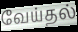
வேய்தல்